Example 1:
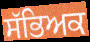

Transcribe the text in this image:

ਸੱਭਿਅਕ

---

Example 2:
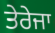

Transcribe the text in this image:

ਤੇਰੇਜਾ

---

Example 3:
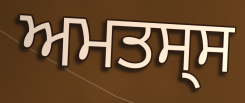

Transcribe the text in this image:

ਅਮਤਸ੍ਸ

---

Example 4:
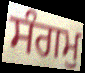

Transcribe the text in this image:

ਸੰਗਮੁ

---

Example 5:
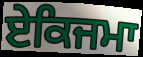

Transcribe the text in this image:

ਏਕਿਜਮਾ